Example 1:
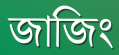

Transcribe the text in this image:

জাজিং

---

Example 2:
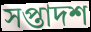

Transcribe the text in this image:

সপ্তাদশ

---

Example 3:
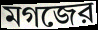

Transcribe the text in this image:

মগজের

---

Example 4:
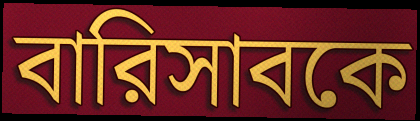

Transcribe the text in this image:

বারিসাবকে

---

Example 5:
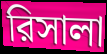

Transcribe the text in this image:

রিসালা